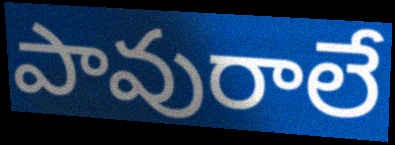
పావురాలే